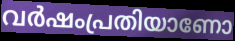
വർഷംപ്രതിയാണോ